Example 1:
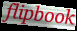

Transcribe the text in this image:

flipbook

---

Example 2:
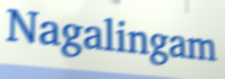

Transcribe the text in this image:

Nagalingam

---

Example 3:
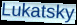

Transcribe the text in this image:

Lukatsky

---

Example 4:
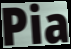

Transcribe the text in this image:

Pia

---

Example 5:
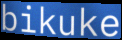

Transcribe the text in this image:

bikuke